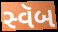
સ્વૅબ